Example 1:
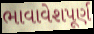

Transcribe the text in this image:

ભાવાવેશપૂર્ણ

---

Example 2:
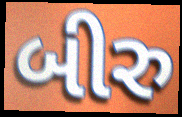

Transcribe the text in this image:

બીરુ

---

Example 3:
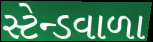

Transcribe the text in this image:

સ્ટેન્ડવાળા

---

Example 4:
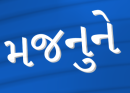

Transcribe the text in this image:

મજનુને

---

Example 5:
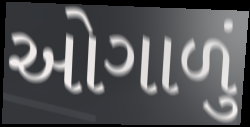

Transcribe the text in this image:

ઓગાળું